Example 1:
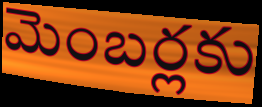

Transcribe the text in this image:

మెంబర్లకు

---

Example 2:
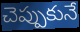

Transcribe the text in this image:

చెప్పుకునే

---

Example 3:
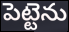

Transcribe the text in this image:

పెట్టెను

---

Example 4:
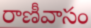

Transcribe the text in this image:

రాణీవాసం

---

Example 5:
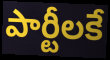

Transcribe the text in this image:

పార్టీలకే